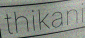
thikani